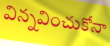
విన్నవించుకోనా